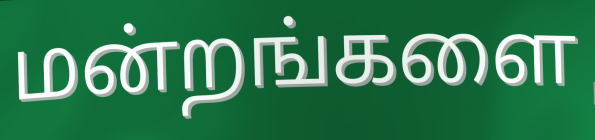
மன்றங்களை